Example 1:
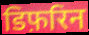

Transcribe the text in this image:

डिफ़रिन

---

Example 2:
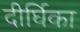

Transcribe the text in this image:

दीर्घिका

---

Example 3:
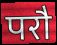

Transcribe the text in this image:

परौ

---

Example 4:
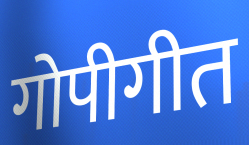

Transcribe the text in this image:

गोपीगीत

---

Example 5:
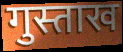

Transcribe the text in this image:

गुस्ताख